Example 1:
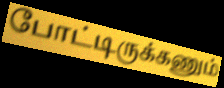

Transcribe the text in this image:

போட்டிருக்கணும்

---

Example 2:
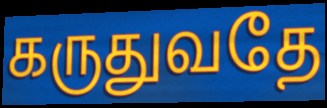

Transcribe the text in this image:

கருதுவதே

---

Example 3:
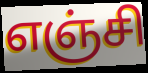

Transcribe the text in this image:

எஞ்சி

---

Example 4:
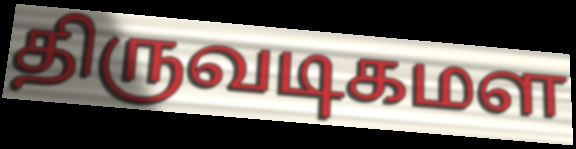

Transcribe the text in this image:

திருவடிகமள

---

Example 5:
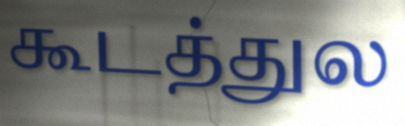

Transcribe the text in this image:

கூடத்துல